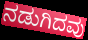
ನಡುಗಿದವು